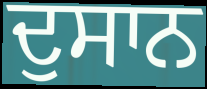
ਦੁਸਾਨ